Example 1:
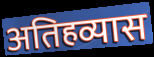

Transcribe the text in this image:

अतिहव्यास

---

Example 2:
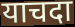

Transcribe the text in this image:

याचदा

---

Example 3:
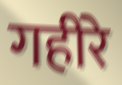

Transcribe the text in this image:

गहीरे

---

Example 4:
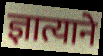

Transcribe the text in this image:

ज्ञात्याने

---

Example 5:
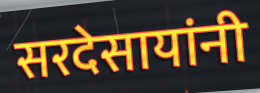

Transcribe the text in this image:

सरदेसायांनी